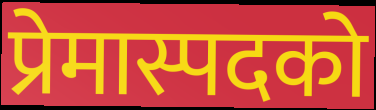
प्रेमास्पदको